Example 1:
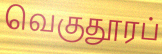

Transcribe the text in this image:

வெகுதூரப்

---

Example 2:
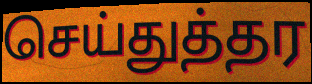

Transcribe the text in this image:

செய்துத்தர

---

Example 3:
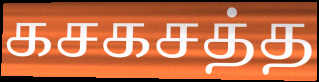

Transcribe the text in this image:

கசகசத்த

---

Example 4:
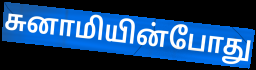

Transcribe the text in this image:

சுனாமியின்போது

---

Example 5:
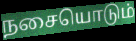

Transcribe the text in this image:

நசையொடும்